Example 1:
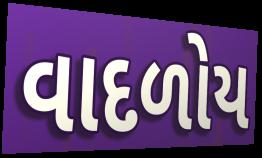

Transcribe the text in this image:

વાદળોય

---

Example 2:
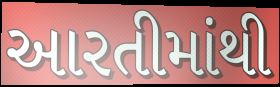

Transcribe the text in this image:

આરતીમાંથી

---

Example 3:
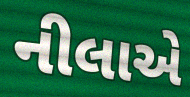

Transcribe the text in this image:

નીલાએ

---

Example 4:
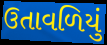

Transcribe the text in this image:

ઉતાવળિયું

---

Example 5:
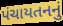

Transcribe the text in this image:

પંચાયતનનું